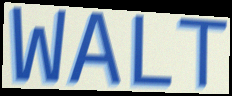
WALT